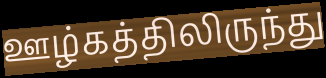
ஊழ்கத்திலிருந்து